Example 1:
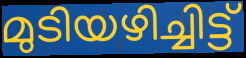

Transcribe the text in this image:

മുടിയഴിച്ചിട്ട്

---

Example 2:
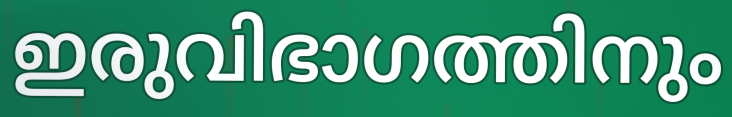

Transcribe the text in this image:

ഇരുവിഭാഗത്തിനും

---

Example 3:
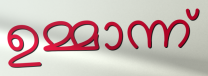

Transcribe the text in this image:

ഉമ്മാന്ന്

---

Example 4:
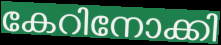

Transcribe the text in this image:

കേറിനോക്കി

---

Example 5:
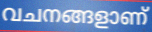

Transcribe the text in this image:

വചനങ്ങളാണ്